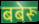
बबेरू